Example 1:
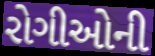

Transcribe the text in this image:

રોગીઓની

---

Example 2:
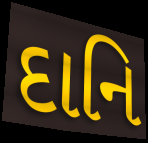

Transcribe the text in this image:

દાનિ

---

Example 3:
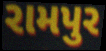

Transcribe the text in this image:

રામપુર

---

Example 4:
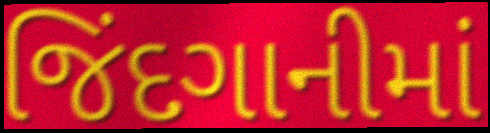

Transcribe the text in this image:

જિંદગાનીમાં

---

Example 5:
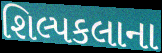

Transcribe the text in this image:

શિલ્પકલાના